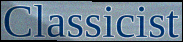
Classicist